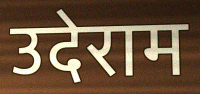
उदेराम